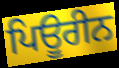
ਪਿਊਰੀਨ